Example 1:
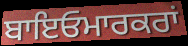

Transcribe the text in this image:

ਬਾਇਓਮਾਰਕਰਾਂ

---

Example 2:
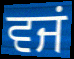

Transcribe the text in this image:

ਵਜਂ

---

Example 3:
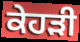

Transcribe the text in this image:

ਕੇਹੜੀ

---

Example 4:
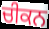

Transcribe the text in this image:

ਚੀਕਨ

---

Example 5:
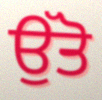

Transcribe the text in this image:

ਉੱਤੋ